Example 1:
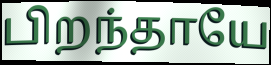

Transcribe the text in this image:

பிறந்தாயே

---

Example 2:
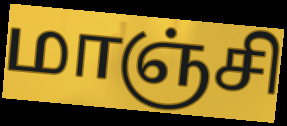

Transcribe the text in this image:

மாஞ்சி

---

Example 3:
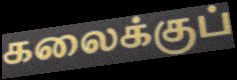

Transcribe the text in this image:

கலைக்குப்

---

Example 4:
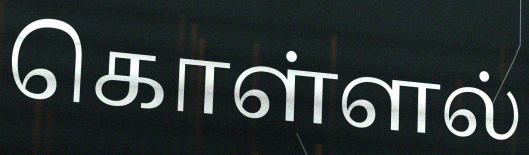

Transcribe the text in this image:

கொள்ளல்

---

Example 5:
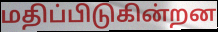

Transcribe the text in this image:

மதிப்பிடுகின்றன